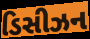
ડિસીઝન